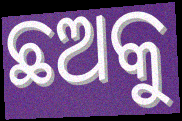
ଛଅକୁ